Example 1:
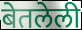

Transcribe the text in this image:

बेतलेली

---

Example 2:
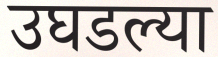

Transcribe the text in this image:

उघडल्या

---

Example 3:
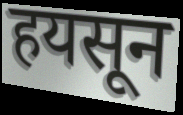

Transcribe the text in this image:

हयसून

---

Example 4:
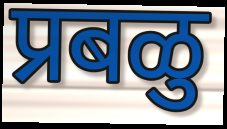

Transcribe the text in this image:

प्रबळु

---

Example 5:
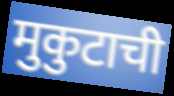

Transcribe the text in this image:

मुकुटाची